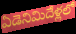
ఏడెనిమిదేళ్లలో